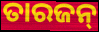
ତାରଜନ୍